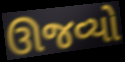
ઊજવ્યો